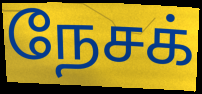
நேசக்